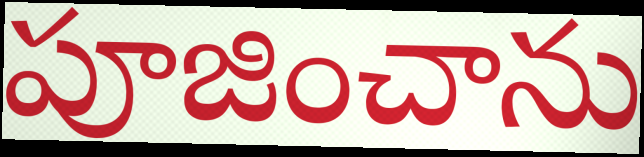
పూజించాను